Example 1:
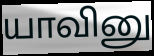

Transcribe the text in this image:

யாவினு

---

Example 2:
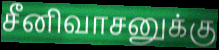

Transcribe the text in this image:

சீனிவாசனுக்கு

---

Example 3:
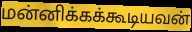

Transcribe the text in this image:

மன்னிக்கக்கூடியவன்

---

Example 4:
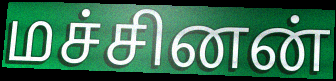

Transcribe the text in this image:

மச்சினன்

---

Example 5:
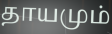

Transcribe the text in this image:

தாயமும்